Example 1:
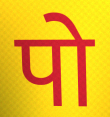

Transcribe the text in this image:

पो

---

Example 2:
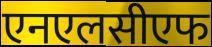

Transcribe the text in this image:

एनएलसीएफ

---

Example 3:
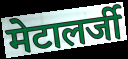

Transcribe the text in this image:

मेटालर्जी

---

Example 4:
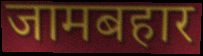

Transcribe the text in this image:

जामबहार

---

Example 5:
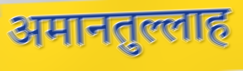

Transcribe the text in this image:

अमानतुल्लाह